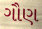
ગૌણ